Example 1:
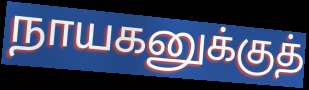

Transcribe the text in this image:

நாயகனுக்குத்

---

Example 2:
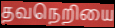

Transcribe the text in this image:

தவநெறியை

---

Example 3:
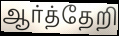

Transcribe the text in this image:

ஆர்த்தேறி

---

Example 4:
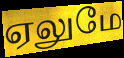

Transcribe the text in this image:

ஏலுமே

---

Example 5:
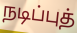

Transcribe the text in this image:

நடிப்புத்